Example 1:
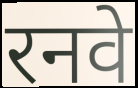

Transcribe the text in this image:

रनवे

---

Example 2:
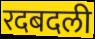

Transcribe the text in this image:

रदबदली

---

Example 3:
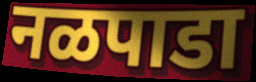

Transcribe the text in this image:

नळपाडा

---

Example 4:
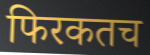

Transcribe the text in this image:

फिरकतच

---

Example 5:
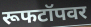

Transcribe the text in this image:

रूफटॉपवर